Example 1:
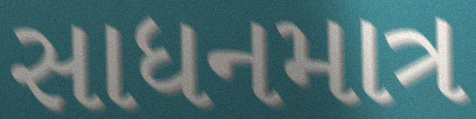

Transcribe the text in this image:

સાધનમાત્ર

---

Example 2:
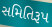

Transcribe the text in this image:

સમિતિરૂપ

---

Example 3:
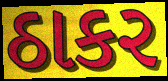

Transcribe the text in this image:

ઠાકર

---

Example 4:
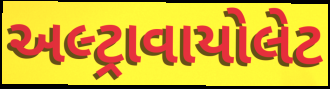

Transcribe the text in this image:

અલ્ટ્રાવાયોલેટ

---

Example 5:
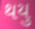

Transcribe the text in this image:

થયુ